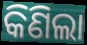
କିଣିଲା